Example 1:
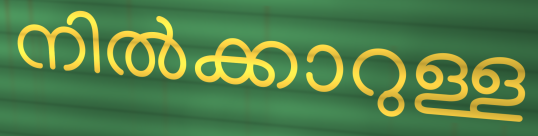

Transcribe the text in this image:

നിൽക്കാറുള്ള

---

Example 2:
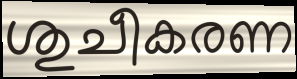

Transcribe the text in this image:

ശുചീകരണ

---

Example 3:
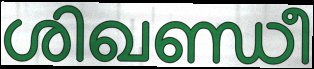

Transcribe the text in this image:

ശിഖണ്ഡീ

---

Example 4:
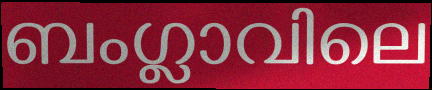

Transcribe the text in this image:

ബംഗ്ലാവിലെ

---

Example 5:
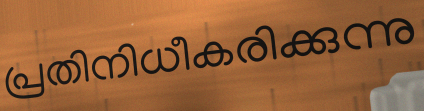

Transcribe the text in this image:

പ്രതിനിധീകരിക്കുന്നു